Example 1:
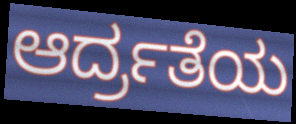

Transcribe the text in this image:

ಆರ್ದ್ರತೆಯ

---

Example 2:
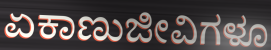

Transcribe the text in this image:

ಏಕಾಣುಜೀವಿಗಳೂ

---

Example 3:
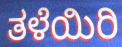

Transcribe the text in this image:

ತಳೆಯಿರಿ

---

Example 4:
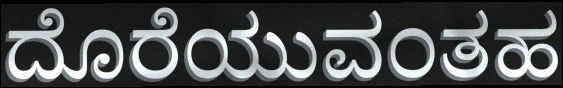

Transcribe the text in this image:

ದೊರೆಯುವಂತಹ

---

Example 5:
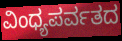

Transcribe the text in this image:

ವಿಂಧ್ಯಪರ್ವತದ